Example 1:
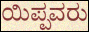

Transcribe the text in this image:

ಯಿಪ್ಪವರು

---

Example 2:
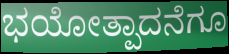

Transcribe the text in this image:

ಭಯೋತ್ಪಾದನೆಗೂ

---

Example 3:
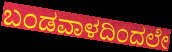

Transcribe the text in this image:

ಬಂಡವಾಳದಿಂದಲೇ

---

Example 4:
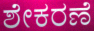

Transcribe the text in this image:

ಶೇಕರಣೆ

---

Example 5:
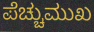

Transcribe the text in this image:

ಪೆಚ್ಚುಮುಖ